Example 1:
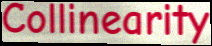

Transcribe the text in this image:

Collinearity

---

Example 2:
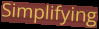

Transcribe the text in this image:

Simplifying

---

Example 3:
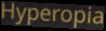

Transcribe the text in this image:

Hyperopia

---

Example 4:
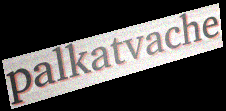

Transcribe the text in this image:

palkatvache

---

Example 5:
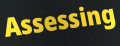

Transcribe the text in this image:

Assessing